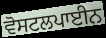
ਵੋਸਟਲਪਾਈਨ